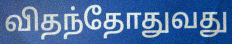
விதந்தோதுவது